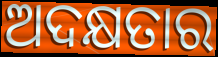
ଅଦକ୍ଷତାର